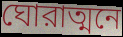
ঘোরাত্মনে